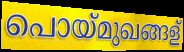
പൊയ്മുഖങ്ങള്